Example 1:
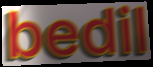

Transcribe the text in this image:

bedil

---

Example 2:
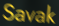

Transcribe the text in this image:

Savak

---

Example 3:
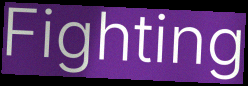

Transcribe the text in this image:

Fighting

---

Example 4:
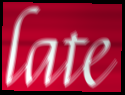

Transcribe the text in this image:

late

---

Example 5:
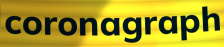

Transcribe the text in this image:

coronagraph